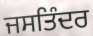
ਜਸਤਿੰਦਰ